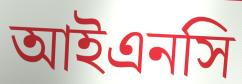
আইএনসি